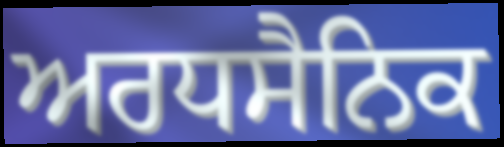
ਅਰਧਸੈਨਿਕ